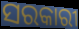
ସରକାରୀ